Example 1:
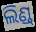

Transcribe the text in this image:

ଲିଣ୍ଡ୍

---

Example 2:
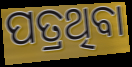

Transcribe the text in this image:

ପତ୍ରଥିବା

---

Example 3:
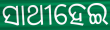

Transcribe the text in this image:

ସାଥୀହେଇ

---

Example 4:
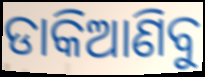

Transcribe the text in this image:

ଡାକିଆଣିବୁ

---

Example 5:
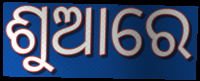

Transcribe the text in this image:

ଶୁଆରେ